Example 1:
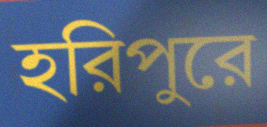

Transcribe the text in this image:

হরিপুরে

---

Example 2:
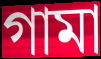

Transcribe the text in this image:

গামা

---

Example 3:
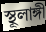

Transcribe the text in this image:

স্থূলাঙ্গী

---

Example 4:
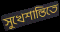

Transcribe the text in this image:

সুখেশান্তিতে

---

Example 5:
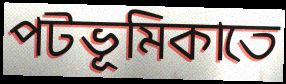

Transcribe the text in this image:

পটভূমিকাতে